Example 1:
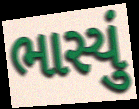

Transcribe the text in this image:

ભાસ્યું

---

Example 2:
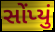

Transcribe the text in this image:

સોંપ્યું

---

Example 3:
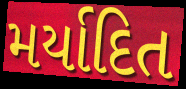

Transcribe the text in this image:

મર્યાદિત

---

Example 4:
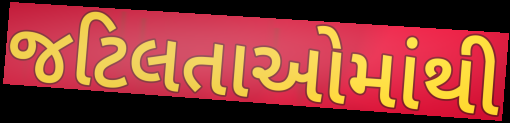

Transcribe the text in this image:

જટિલતાઓમાંથી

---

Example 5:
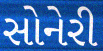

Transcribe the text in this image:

સોનેરી